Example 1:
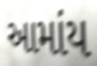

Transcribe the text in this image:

આમાંય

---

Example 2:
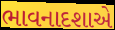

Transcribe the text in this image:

ભાવનાદશાએ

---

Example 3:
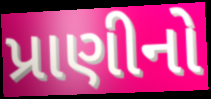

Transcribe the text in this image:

પ્રાણીનો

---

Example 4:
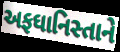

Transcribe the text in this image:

અફઘાનિસ્તાને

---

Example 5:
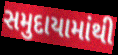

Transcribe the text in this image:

સમુદાયામાંથી